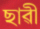
ছাৱী